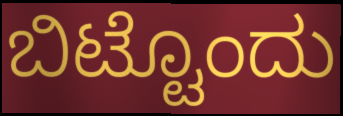
ಬಿಟ್ಟೊಂದು